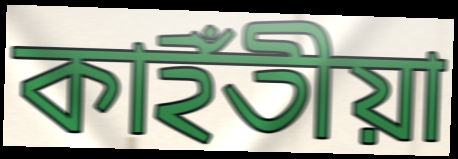
কাইঁতীয়া